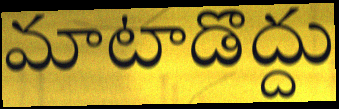
మాటాడొద్దు